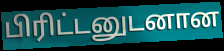
பிரிட்டனுடனான